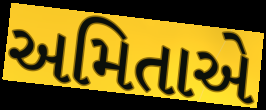
અમિતાએ